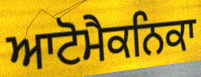
ਆਟੋਮੈਕਨਿਕਾ